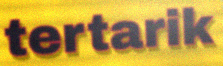
tertarik